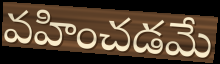
వహించడమే